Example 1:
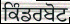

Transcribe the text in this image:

ਕਿੰਡਰਬੋਟ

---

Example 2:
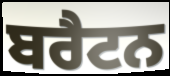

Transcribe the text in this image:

ਬਰੈਟਨ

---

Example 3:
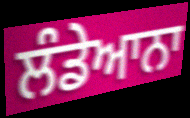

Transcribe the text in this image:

ਲੰਡੇਆਨਾ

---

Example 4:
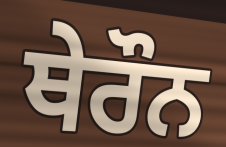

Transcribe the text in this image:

ਥੇਰੌਨ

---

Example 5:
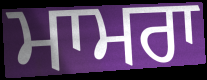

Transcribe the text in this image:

ਮਾਮਰਾ